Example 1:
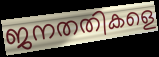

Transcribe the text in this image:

ജനതതികളെ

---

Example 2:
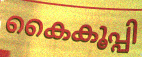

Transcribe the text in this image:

കൈകൂപ്പി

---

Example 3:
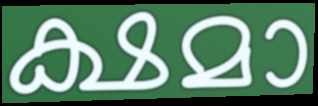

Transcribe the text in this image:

ക്ഷമാ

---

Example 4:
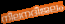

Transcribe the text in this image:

നീലനദീജലം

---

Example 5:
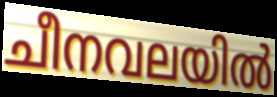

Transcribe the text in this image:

ചീനവലയിൽ